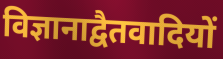
विज्ञानाद्वैतवादियों